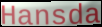
Hansda